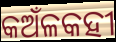
କଅଁଳକହୀ